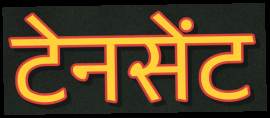
टेनसेंट